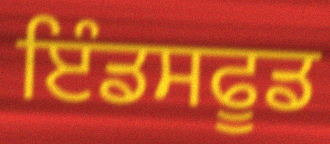
ਇੰਡਸਫੂਡ